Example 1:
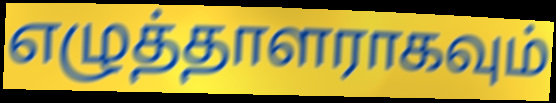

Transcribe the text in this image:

எழுத்தாளராகவும்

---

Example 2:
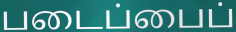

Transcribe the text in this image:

படைப்பைப்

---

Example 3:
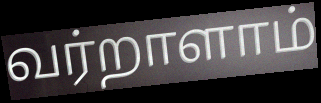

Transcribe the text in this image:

வர்றாளாம்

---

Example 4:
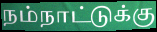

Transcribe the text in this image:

நம்நாட்டுக்கு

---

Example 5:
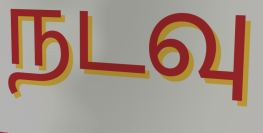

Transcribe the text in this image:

நடவு